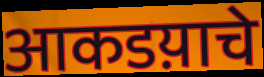
आकडय़ाचे